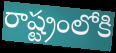
రాష్ట్రంలోకి